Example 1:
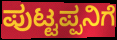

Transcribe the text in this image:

ಪುಟ್ಟಪ್ಪನಿಗೆ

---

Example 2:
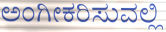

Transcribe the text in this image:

ಅಂಗೀಕರಿಸುವಲ್ಲಿ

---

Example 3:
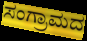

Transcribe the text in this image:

ಸಂಗ್ರಾಮದ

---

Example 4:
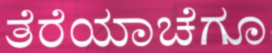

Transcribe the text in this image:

ತೆರೆಯಾಚೆಗೂ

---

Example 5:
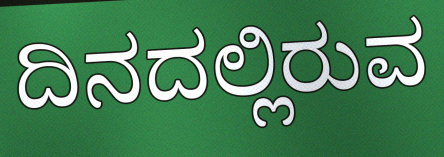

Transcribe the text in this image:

ದಿನದಲ್ಲಿರುವ